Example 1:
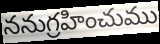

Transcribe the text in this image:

ననుగ్రహించుము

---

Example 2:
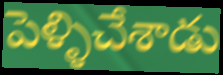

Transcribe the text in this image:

పెళ్ళిచేశాడు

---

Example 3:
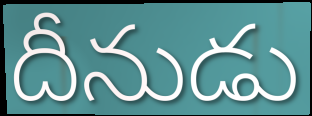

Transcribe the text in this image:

దీనుడు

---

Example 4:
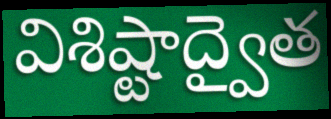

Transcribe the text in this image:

విశిష్టాద్వైత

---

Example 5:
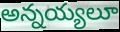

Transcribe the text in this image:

అన్నయ్యలూ